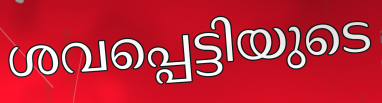
ശവപ്പെട്ടിയുടെ